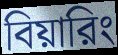
বিয়ারিং